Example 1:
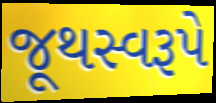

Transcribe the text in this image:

જૂથસ્વરૂપે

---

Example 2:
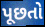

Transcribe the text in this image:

પૂછતો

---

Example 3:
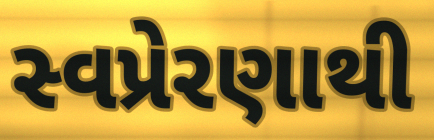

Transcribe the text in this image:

સ્વપ્રેરણાથી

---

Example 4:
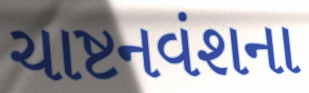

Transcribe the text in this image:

ચાષ્ટનવંશના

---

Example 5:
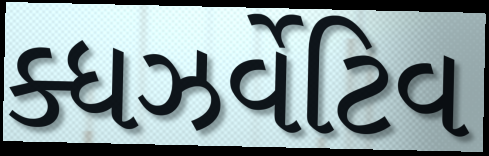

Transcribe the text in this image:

ક્ધઝર્વેટિવ